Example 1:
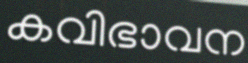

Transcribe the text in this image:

കവിഭാവന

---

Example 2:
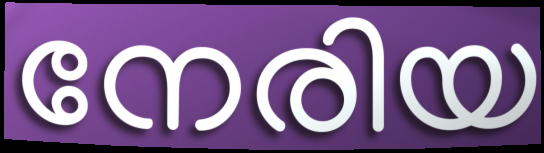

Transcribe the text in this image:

നേരിയ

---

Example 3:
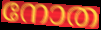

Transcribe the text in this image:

നോത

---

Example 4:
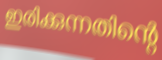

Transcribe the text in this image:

ഇരിക്കുന്നതിന്റെ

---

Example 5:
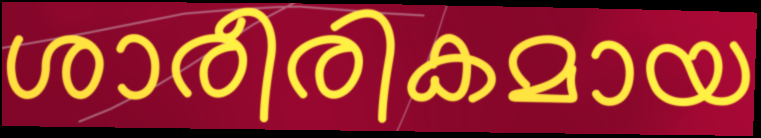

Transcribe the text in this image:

ശാരീരികമായ